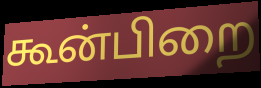
கூன்பிறை